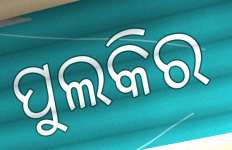
ପୁଲକିର